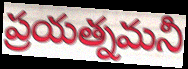
ప్రయత్నమనీ